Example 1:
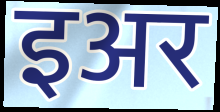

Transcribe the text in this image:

इअर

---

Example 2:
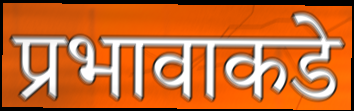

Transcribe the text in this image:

प्रभावाकडे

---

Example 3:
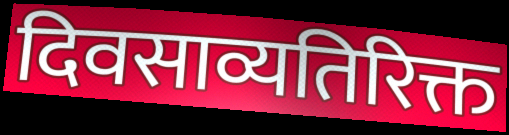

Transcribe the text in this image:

दिवसाव्यतिरिक्त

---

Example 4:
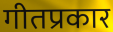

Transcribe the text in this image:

गीतप्रकार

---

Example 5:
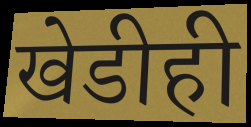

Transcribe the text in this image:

खेडीही